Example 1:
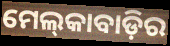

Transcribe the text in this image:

ମେଲ୍‍କାବାଡ଼ିର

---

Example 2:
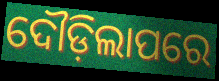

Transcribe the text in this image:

ଦୌଡ଼ିଲାପରେ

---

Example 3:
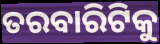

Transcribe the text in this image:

ତରବାରିଟିକୁ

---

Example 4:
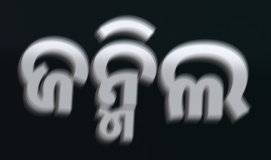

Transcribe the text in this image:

ଜନ୍ମିଲ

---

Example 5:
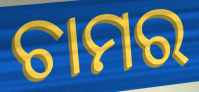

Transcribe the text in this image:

ଚାମର